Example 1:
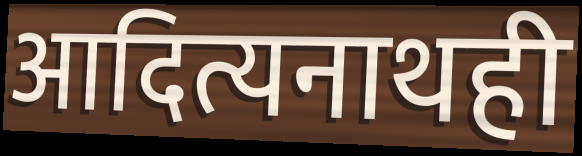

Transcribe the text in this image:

आदित्यनाथही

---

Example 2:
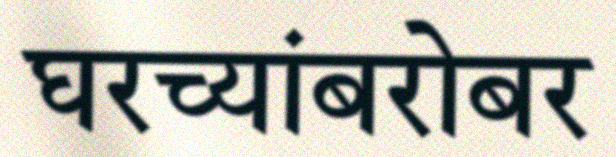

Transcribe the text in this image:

घरच्यांबरोबर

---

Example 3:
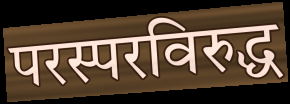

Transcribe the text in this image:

परस्परविरुद्ध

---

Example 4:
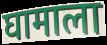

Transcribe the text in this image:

घामाला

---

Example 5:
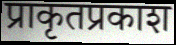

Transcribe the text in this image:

प्राकृतप्रकाश